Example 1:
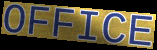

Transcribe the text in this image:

OFFICE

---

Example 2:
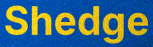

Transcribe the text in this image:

Shedge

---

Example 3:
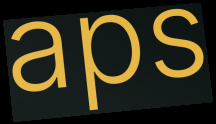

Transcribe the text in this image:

aps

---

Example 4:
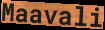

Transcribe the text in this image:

Maavali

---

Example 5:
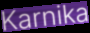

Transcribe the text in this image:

Karnika